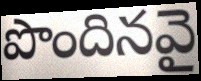
పొందినవై